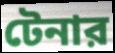
টেনার